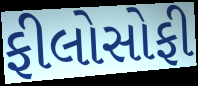
ફીલોસોફી